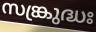
സങ്ക്രുദ്ധഃ